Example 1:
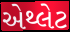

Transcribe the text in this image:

એથ્લેટ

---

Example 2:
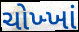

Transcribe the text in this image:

ચોખ્ખાં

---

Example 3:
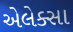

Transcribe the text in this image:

એલેક્સા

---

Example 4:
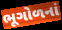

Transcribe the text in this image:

ભૂગોળનાં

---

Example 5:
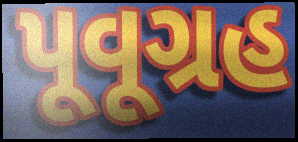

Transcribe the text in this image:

પૂવૂગ્રહ